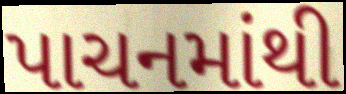
પાચનમાંથી